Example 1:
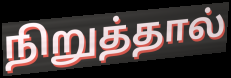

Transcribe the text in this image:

நிறுத்தால்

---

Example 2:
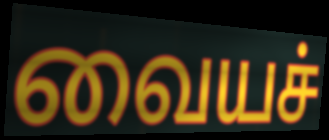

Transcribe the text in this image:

வையச்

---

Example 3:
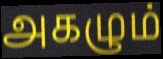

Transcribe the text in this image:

அகழும்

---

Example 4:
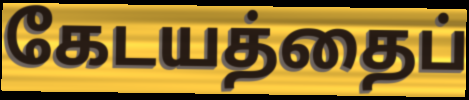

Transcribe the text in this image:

கேடயத்தைப்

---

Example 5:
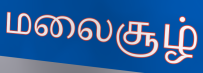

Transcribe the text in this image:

மலைசூழ்